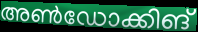
അൺഡോക്കിങ്